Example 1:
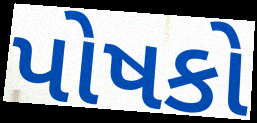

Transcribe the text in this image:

પોષકો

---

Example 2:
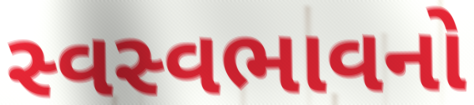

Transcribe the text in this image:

સ્વસ્વભાવનો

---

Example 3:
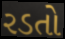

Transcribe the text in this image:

રડતો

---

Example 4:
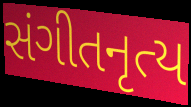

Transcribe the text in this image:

સંગીતનૃત્ય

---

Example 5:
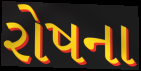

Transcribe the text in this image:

રોષના